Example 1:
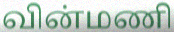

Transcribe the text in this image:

வின்மணி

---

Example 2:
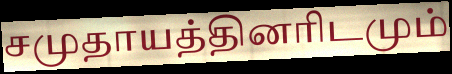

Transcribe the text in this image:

சமுதாயத்தினரிடமும்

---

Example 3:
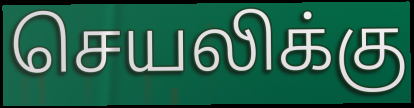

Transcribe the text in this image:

செயலிக்கு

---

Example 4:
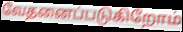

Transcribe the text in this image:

வேதனைப்படுகிறோம்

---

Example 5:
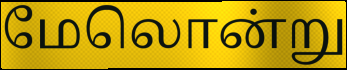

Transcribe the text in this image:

மேலொன்று